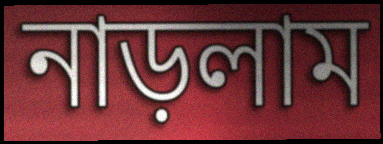
নাড়লাম